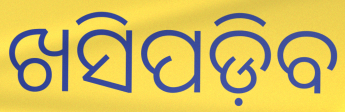
ଖସିପଡ଼ିବ